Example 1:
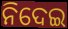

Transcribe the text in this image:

ନିଦେଇ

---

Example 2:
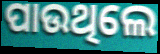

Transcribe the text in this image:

ପାଉଥିଲେ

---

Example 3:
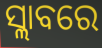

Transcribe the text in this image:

ସ୍ଲାବରେ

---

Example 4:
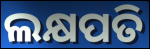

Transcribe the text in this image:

ଲକ୍ଷପତି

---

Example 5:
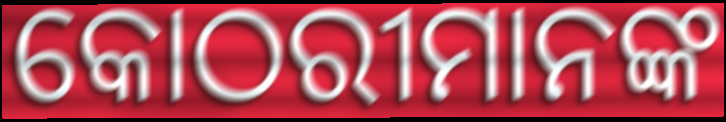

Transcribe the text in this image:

କୋଠରୀମାନଙ୍କ